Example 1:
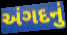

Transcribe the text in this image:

અંગદનું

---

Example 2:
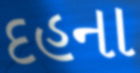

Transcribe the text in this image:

દહના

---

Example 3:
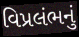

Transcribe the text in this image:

વિપ્રલંભનું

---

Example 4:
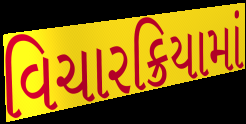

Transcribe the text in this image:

વિચારક્રિયામાં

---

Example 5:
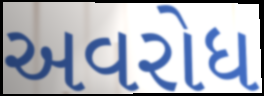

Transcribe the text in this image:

અવરોધ